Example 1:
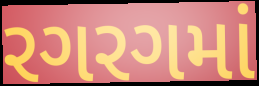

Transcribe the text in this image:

રગરગમાં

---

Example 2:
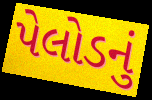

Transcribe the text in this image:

પેલોડનું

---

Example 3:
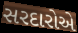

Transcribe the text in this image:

સરદારોએ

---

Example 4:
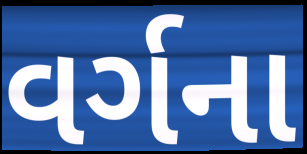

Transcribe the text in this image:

વર્ગના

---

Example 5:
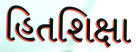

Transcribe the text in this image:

હિતશિક્ષા